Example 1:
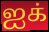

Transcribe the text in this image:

ஐக்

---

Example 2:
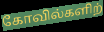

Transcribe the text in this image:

கோவில்களிற்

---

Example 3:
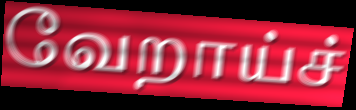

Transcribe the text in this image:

வேறாய்ச்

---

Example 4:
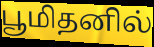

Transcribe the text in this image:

பூமிதனில்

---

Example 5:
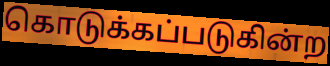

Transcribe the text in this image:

கொடுக்கப்படுகின்ற